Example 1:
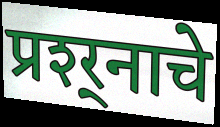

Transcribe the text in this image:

प्रश्र्नाचे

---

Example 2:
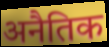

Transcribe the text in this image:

अनैतिक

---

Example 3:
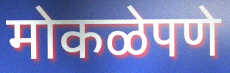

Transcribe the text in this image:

मोकळेपणे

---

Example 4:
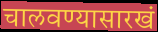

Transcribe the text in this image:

चालवण्यासारखं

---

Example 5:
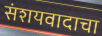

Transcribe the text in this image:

संशयवादाचा